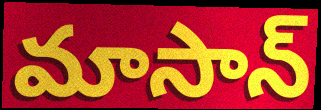
మాసాన్